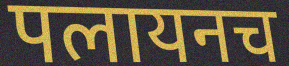
पलायनच